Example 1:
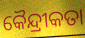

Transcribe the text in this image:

କୈନ୍ଦ୍ରୀକତା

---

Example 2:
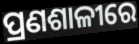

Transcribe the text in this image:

ପ୍ରଣଶାଳୀରେ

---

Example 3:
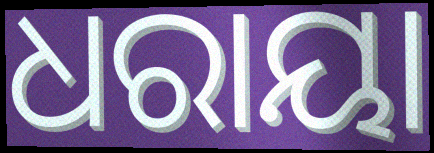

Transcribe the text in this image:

ଧରାୟା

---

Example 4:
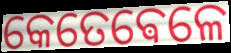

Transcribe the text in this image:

କେତେଵେଳେ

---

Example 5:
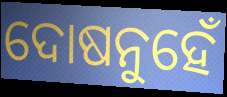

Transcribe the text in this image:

ଦୋଷନୁହେଁ